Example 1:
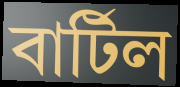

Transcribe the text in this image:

বার্টিল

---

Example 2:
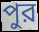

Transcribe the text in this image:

পুর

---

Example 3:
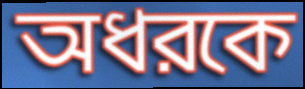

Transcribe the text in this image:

অধরকে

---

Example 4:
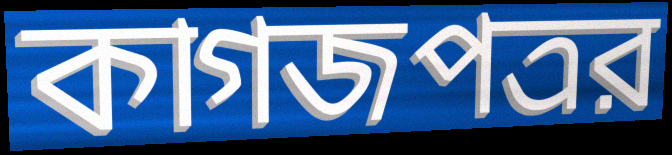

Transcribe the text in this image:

কাগজপত্রর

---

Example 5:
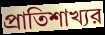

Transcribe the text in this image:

প্রাতিশাখ্যর